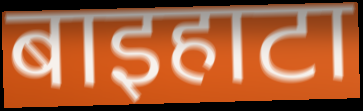
बाइहाटा